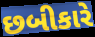
છબીકારે